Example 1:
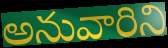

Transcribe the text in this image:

అనువారిని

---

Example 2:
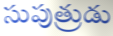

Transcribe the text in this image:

సుపుత్రుడు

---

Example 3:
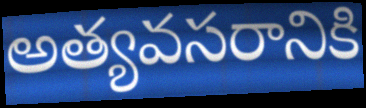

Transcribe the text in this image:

అత్యవసరానికి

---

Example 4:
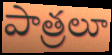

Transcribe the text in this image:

పాత్రలూ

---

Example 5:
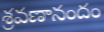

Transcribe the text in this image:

శ్రవణానందం